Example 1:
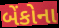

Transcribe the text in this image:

બેંકોના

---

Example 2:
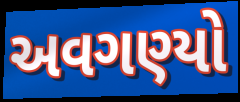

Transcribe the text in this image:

અવગણ્યો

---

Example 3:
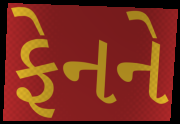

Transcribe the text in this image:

ફેનને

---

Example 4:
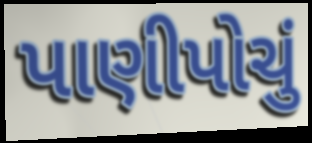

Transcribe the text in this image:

પાણીપોચું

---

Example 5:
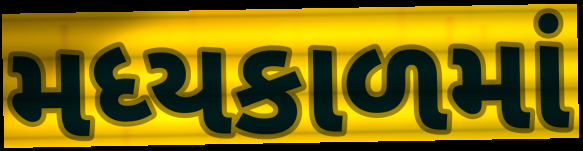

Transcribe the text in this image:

મધ્યકાળમાં